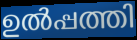
ഉൽപ്പത്തി